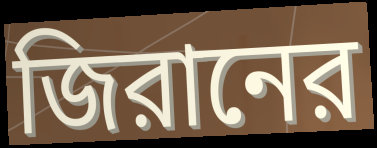
জিরানের